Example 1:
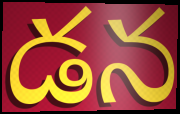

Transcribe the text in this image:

డన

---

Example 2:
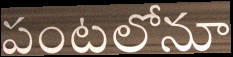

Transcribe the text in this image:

పంటలోనూ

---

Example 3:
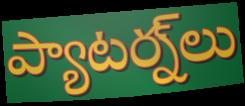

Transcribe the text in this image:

ప్యాటర్న్‌లు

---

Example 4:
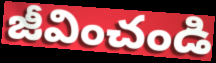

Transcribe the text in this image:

జీవించండి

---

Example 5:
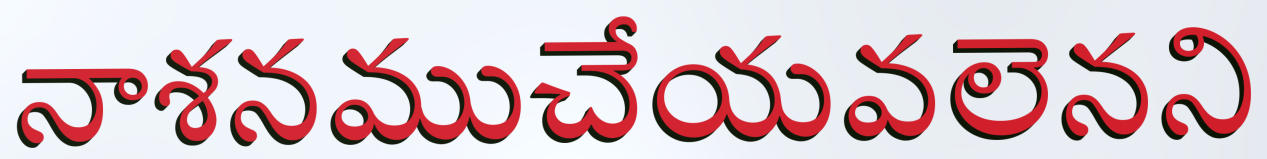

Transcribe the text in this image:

నాశనముచేయవలెనని